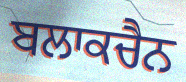
ਬਲਾਕਚੈਨ